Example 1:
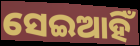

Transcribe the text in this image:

ସେଇଆହିଁ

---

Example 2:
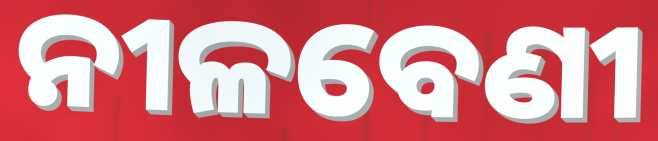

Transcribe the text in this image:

ନୀଳବେଣୀ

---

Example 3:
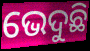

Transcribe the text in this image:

ଭେଦୁଛି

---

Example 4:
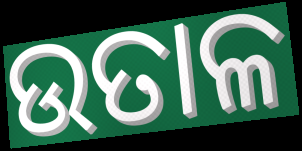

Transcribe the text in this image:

ଉତାଳ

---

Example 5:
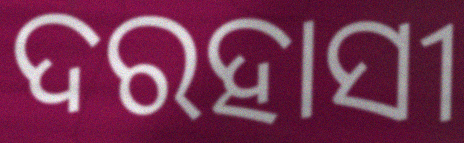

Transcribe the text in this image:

ଦରହାସୀ